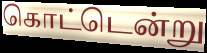
கொட்டென்று